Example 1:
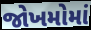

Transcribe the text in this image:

જોખમોમાં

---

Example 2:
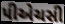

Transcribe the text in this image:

પીએચસી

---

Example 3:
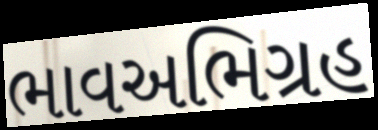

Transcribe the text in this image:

ભાવઅભિગ્રહ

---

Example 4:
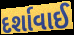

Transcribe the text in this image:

દર્શાવાઈ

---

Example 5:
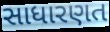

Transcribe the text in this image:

સાધારણત